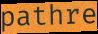
pathre